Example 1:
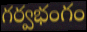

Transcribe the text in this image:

గర్వభంగం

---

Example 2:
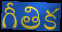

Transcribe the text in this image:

గీతిక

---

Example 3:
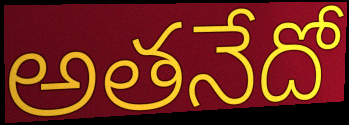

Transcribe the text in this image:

అతనేదో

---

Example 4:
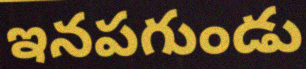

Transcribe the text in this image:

ఇనపగుండు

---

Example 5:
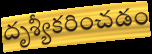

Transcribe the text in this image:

దృశ్యీకరించడం